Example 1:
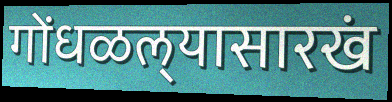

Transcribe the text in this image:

गोंधळल्यासारखं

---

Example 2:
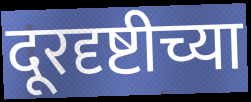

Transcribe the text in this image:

दूरदृष्टीच्या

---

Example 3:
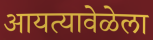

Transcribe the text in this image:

आयत्यावेळेला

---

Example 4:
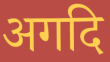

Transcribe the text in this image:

अगदि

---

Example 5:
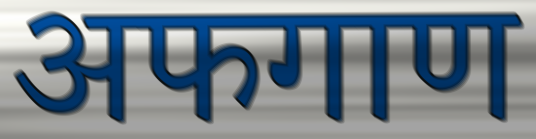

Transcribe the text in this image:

अफगाण